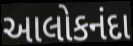
આલોકનંદા